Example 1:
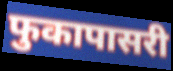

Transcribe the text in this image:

फुकापासरी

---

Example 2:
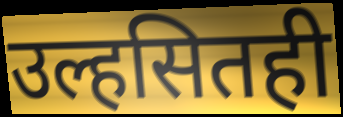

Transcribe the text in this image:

उल्हसितही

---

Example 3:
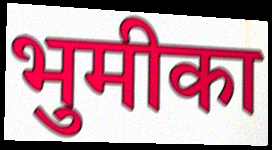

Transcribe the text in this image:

भुमीका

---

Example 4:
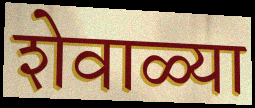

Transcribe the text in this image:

शेवाळ्या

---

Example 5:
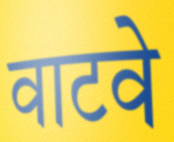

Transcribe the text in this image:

वाटवे